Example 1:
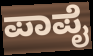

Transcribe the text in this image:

ಪಾಪೈ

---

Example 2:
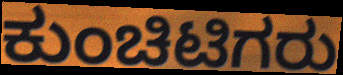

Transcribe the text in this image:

ಕುಂಚಿಟಿಗರು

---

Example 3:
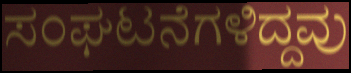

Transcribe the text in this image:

ಸಂಘಟನೆಗಳಿದ್ದವು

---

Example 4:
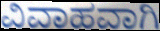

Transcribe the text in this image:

ವಿವಾಹವಾಗಿ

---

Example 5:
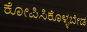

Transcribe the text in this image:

ಕೋಪಿಸಿಕೊಳ್ಳಬೇಡ